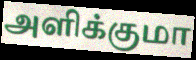
அளிக்குமா